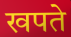
खपते